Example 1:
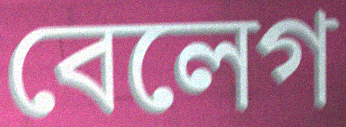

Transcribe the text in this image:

বেলেগ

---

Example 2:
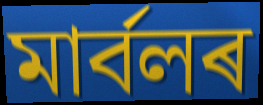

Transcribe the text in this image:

মাৰ্বলৰ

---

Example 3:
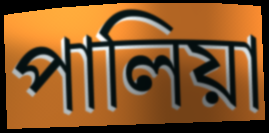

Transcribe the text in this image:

পালিয়া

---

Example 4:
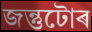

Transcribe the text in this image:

জন্তুটোৰ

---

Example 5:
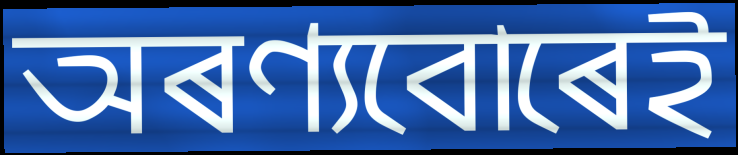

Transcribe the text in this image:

অৰণ্যবোৰেই